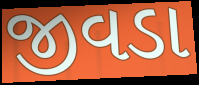
જીવડા